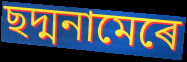
ছদ্মনামেৰে